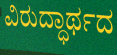
ವಿರುದ್ಧಾರ್ಥದ